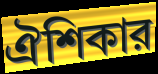
ঐশিকার